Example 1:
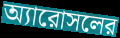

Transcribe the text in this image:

অ্যারোসলের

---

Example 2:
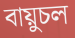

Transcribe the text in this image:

বায়ুচল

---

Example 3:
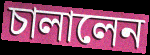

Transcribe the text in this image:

চালালেন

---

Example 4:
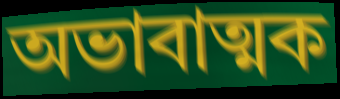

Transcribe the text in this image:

অভাবাত্মক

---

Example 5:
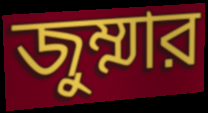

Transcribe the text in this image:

জুম্মার